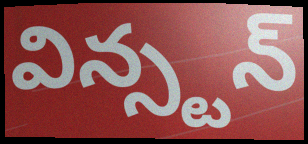
విన్స్టన్